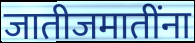
जातीजमातींना